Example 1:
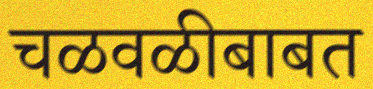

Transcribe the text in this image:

चळवळीबाबत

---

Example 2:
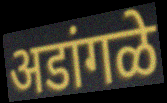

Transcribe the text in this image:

अडांगळे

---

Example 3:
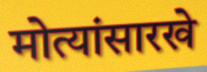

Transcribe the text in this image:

मोत्यांसारखे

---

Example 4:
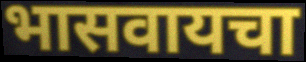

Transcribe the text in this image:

भासवायचा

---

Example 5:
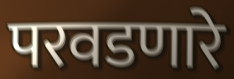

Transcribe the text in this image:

परवडणारे